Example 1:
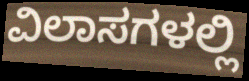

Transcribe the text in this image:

ವಿಲಾಸಗಳಲ್ಲಿ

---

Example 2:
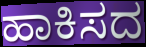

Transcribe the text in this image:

ಹಾಕಿಸದ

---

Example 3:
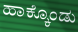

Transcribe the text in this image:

ಹಾಕ್ಕೊಂಡು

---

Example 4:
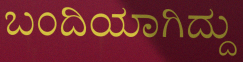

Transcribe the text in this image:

ಬಂದಿಯಾಗಿದ್ದು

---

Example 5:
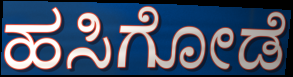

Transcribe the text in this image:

ಹಸಿಗೋಡೆ